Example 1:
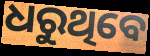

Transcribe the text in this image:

ଧରୁଥିବେ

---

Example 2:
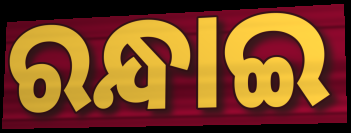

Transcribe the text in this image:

ରନ୍ଧାଇ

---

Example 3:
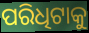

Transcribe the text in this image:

ପରିଧିଟାକୁ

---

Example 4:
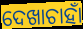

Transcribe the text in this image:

ଦେଖାଚାହାଁ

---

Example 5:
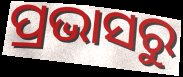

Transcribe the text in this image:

ପ୍ରଭାସରୁ